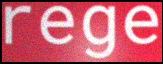
rege